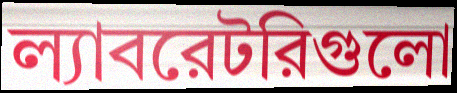
ল্যাবরেটরিগুলো